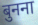
बुनना